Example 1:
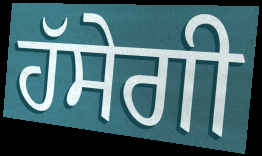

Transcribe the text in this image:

ਹੱਸੇਗੀ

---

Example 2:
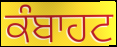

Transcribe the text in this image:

ਕੰਬਾਹਟ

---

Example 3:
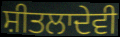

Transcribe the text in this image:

ਸ਼ੀਤਲਾਦੇਵੀ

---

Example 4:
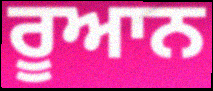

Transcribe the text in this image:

ਰੂਆਨ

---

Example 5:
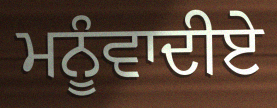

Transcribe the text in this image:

ਮਨੂੰਵਾਦੀਏ